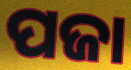
ପଜା